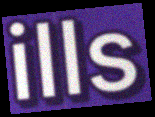
ills